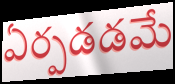
ఏర్పడడమే